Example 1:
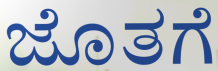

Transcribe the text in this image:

ಜೊತಗೆ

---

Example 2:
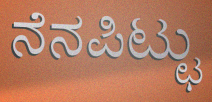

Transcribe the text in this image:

ನೆನಪಿಟ್ಟು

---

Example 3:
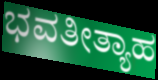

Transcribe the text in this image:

ಭವತೀತ್ಯಾಹ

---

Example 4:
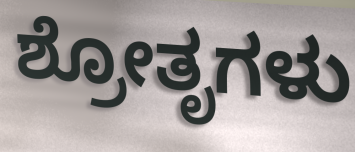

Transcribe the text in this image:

ಶ್ರೋತೃಗಳು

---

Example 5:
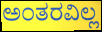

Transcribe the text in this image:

ಅಂತರವಿಲ್ಲ